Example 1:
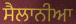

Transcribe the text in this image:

ਸੈਲਾਨੀਆ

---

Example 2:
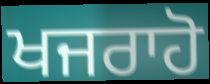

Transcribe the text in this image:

ਖਜਰਾਹੋ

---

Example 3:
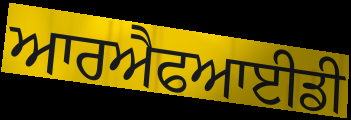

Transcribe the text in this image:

ਆਰਐਫਆਈਡੀ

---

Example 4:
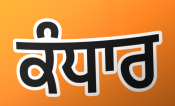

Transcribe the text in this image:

ਕੰਧਾਰ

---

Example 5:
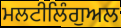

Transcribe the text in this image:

ਮਲਟੀਲਿੰਗੁਅਲ